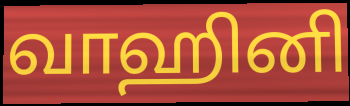
வாஹினி